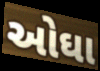
ઓઘા